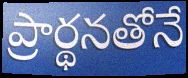
ప్రార్థనతోనే